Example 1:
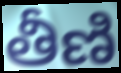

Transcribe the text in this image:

తీణి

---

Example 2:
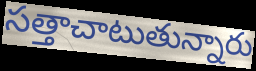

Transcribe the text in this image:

సత్తాచాటుతున్నారు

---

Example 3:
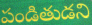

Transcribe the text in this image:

పండితుడని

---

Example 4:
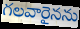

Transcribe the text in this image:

గలవారైనను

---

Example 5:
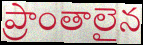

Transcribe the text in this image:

ప్రాంతాలైన